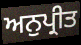
ਅਨੁਪ੍ਰੀਤ